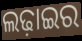
ଲଢ଼ାଇର